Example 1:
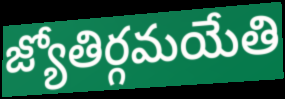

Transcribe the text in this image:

జ్యోతిర్గమయేతి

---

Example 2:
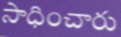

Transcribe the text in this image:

సాధించారు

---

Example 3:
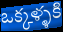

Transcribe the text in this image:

ఒక్కళ్ళకి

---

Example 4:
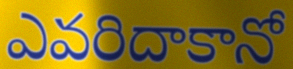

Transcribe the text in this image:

ఎవరిదాకానో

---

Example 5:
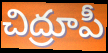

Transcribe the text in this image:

చిద్రూపీ